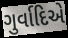
ગુર્વાદિએ